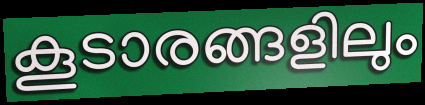
കൂടാരങ്ങളിലും